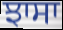
ਝਾਸਾ